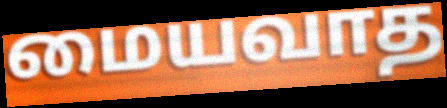
மையவாத